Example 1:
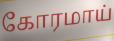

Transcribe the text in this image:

கோரமாய்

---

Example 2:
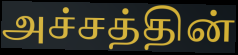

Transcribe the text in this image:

அச்சத்தின்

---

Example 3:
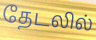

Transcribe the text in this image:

தேடலில்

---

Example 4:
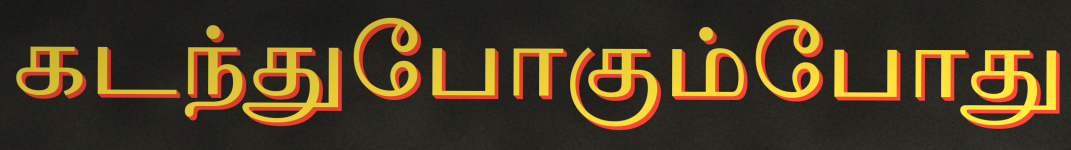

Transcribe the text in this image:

கடந்துபோகும்போது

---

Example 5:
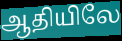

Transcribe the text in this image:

ஆதியிலே